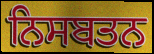
ਨਿਸਬਤਨ